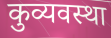
कुव्यवस्था